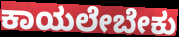
ಕಾಯಲೇಬೇಕು